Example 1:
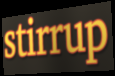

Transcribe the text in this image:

stirrup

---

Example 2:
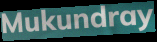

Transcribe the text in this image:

Mukundray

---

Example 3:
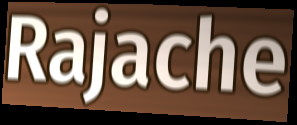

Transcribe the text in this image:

Rajache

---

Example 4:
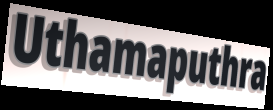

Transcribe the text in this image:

Uthamaputhra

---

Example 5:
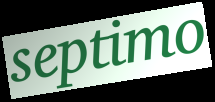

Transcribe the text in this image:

septimo